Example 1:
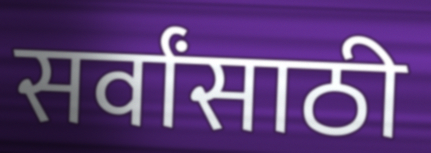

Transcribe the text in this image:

सर्वांसाठी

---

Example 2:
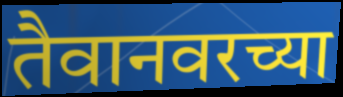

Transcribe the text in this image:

तैवानवरच्या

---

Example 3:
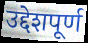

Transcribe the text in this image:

उद्देशपूर्ण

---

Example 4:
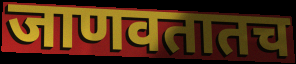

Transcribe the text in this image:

जाणवतातच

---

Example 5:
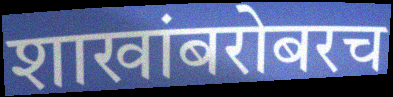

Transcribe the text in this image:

शाखांबरोबरच